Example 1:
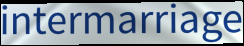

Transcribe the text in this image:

intermarriage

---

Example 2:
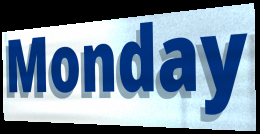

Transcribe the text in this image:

Monday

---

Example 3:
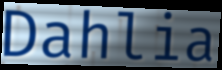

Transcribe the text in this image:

Dahlia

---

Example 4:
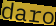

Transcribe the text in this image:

daro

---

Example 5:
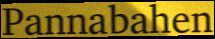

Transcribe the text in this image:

Pannabahen